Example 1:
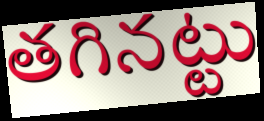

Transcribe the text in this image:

తగినట్టు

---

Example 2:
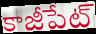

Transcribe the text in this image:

కాజీపేట్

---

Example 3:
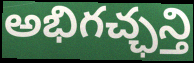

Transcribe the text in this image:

అభిగచ్ఛన్తి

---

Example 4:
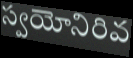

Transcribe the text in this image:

స్వయోనిరివ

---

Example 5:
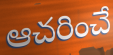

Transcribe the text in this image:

ఆచరించే